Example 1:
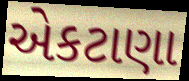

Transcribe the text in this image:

એકટાણા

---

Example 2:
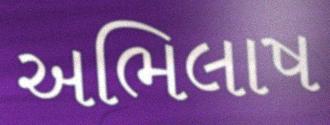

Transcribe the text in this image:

અભિલાષ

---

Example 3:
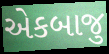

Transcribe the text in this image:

એકબાજુ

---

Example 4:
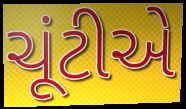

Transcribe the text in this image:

ચૂંટીએ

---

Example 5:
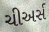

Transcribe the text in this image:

ચીઅર્સ